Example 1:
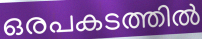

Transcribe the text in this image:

ഒരപകടത്തിൽ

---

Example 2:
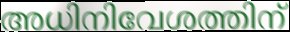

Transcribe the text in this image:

അധിനിവേശത്തിന്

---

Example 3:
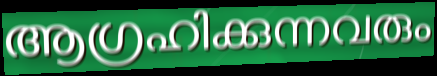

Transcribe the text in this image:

ആഗ്രഹിക്കുന്നവരും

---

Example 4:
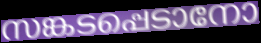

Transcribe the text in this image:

സങ്കടപ്പെടാനോ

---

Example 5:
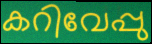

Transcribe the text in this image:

കറിവേപ്പു